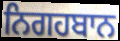
ਨਿਗਹਬਾਨ